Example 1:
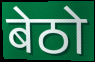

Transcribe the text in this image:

बेठो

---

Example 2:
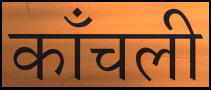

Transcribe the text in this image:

काँचली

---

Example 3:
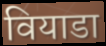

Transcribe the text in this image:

वियाडा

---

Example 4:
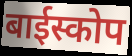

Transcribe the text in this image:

बाईस्कोप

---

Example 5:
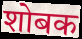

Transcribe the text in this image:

शोबक